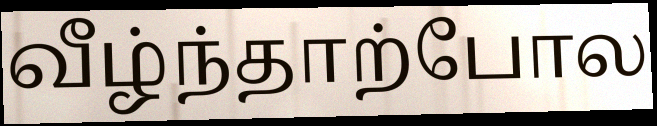
வீழ்ந்தாற்போல